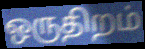
ஒருதிறம்